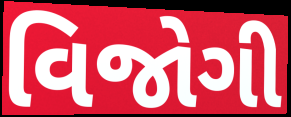
વિજોગી